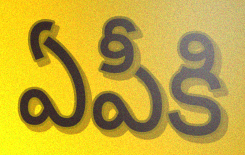
ఏపీకి